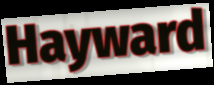
Hayward